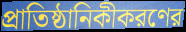
প্রাতিষ্ঠানিকীকরণের